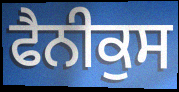
ਫੈਨੀਕੁਸ